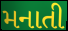
મનાતી